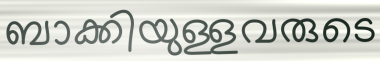
ബാക്കിയുള്ളവരുടെ